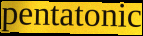
pentatonic